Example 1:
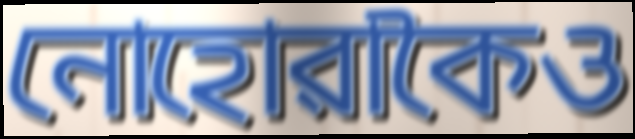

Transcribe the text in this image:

নোহোৱাকৈও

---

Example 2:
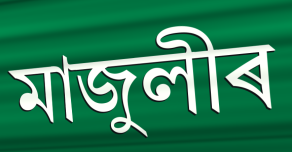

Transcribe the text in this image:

মাজুলীৰ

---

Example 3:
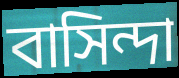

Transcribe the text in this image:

বাসিন্দা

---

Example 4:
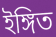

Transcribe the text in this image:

ইঙ্গিত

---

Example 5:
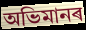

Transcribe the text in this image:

অভিমানৰ